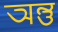
অন্তু